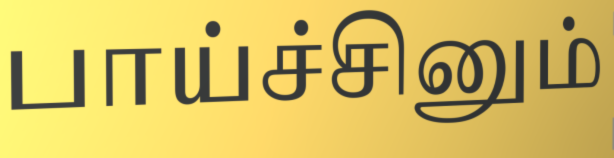
பாய்ச்சினும்